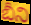
బీని